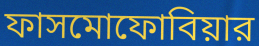
ফাসমোফোবিয়ার